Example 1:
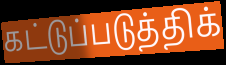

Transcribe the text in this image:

கட்டுப்படுத்திக்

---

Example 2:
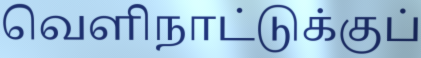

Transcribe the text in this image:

வெளிநாட்டுக்குப்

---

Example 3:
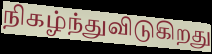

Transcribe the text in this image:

நிகழ்ந்துவிடுகிறது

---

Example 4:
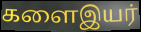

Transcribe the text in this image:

களைஇயர்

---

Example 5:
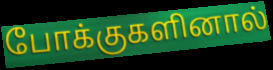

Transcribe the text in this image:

போக்குகளினால்